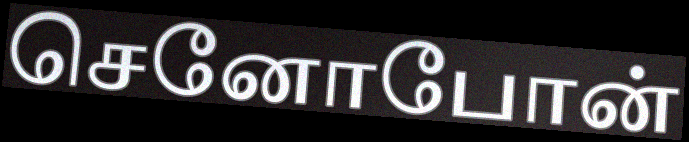
செனோபோன்